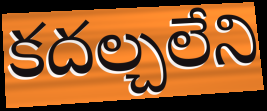
కదల్చలేని